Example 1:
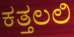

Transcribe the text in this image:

ಕತ್ತಲಲಿ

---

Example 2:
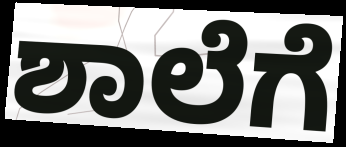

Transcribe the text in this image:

ಶಾಲೆಗೆ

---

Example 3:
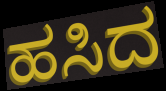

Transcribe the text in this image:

ಹಸಿದ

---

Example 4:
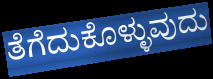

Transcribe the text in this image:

ತೆಗೆದುಕೊಳ್ಳುವುದು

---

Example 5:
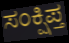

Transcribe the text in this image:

ಸಂಕ್ಷಿಪ್ತ